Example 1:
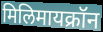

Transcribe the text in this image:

मिलिमायक्रॉन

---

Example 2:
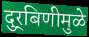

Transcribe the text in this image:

दुर्बिणीमुळे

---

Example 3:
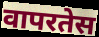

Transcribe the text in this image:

वापरतेस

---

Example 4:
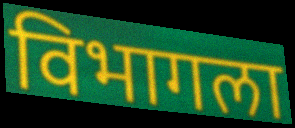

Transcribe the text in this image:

विभागला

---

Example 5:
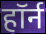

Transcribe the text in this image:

हॉर्न